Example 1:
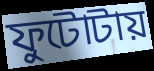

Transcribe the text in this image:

ফুটোটায়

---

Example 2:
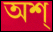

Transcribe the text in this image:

অশ্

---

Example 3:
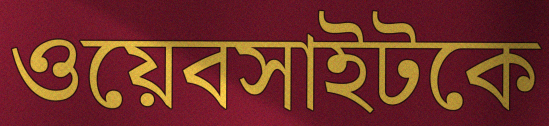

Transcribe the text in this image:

ওয়েবসাইটকে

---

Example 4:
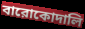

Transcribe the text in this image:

বারোকোদালি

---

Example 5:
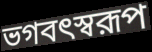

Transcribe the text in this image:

ভগবৎস্বরূপ